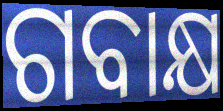
ଗବାକ୍ଷ